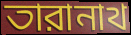
তারানাথ